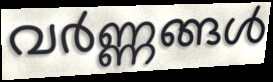
വർണ്ണങ്ങൾ